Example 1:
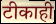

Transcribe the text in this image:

टीकाही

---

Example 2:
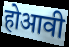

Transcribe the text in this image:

होआवी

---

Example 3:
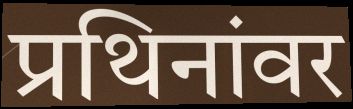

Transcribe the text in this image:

प्रथिनांवर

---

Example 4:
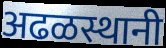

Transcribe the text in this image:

अढळस्थानी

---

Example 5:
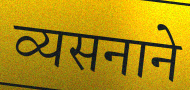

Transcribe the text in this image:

व्यसनाने